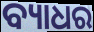
ବ୍ୟାଧର